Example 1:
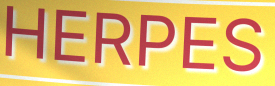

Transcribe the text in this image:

HERPES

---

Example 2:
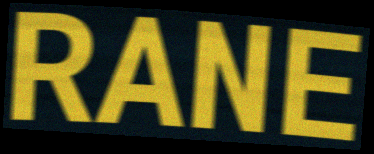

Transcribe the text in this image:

RANE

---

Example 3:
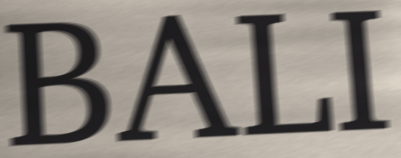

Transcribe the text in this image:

BALI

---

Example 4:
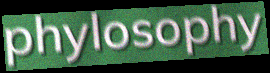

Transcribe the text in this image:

phylosophy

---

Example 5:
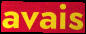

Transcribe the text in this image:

avais